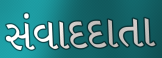
સંવાદદાતા